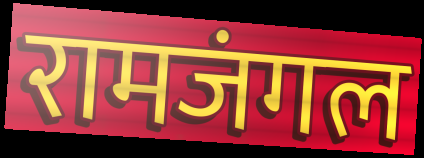
रामजंगल